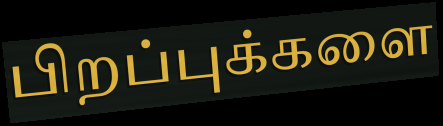
பிறப்புக்களை